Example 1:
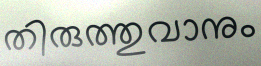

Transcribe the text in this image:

തിരുത്തുവാനും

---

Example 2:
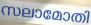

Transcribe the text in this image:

സലാമോതി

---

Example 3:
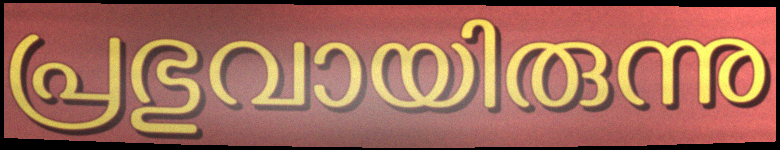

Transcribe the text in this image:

പ്രഭുവായിരുന്നു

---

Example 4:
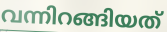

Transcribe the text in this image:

വന്നിറങ്ങിയത്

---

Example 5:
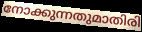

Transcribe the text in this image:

നോക്കുന്നതുമാതിരി